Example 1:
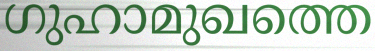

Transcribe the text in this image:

ഗുഹാമുഖത്തെ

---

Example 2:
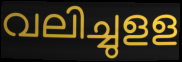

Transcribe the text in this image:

വലിച്ചുളള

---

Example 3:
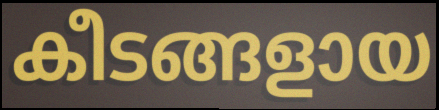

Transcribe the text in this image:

കീടങ്ങളായ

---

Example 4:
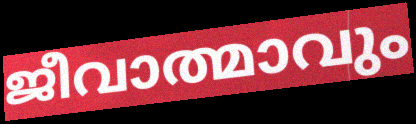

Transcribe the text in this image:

ജീവാത്മാവും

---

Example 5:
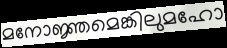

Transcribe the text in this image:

മനോജ്ഞമെങ്കിലുമഹോ